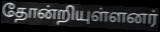
தோன்றியுள்ளனர்